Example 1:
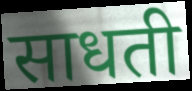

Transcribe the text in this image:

साधती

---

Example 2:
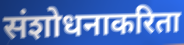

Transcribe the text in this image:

संशोधनाकरिता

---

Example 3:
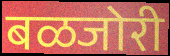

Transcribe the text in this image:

बळजोरी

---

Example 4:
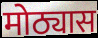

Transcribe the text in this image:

मोठ्यास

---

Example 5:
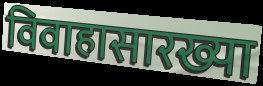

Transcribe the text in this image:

विवाहासारख्या